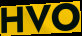
HVO